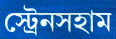
স্ট্রেনসহাম